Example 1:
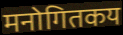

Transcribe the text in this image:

मनोगितकय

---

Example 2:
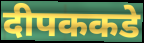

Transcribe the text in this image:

दीपककडे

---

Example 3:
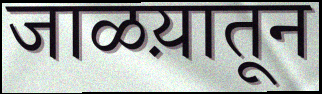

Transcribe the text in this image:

जाळय़ातून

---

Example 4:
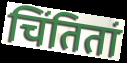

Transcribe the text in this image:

चिंतितां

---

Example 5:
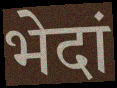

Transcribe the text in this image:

भेदां